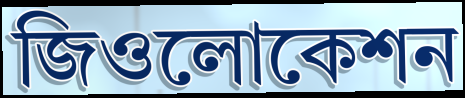
জিওলোকেশন